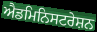
ਐਡਮਿਨਿਸਟਰੇਸ਼ਨ